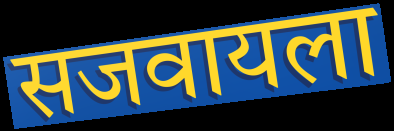
सजवायला